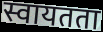
स्वायतता